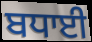
ਬਧਾਈ